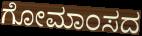
ಗೋಮಾಂಸದ